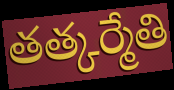
తత్కర్మేతి